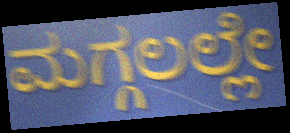
ಮಗ್ಗಲಲ್ಲೇ